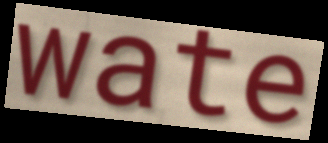
wate